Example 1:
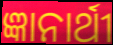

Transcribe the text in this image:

ଜ୍ଞାନାର୍ଥୀ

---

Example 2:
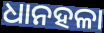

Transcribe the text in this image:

ଧାନହଳା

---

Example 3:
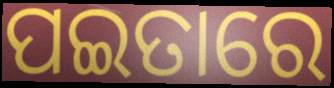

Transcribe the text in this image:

ପଇତାରେ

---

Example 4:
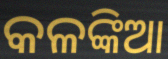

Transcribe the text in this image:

କଳଙ୍କିଆ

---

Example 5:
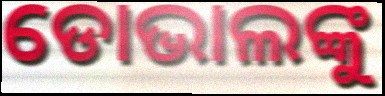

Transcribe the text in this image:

ଡୋଭାଲଙ୍କୁ